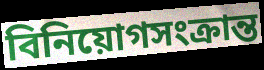
বিনিয়োগসংক্রান্ত